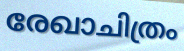
രേഖാചിത്രം